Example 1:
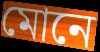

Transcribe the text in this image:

মোনে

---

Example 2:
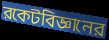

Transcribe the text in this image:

রকেটবিজ্ঞানের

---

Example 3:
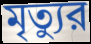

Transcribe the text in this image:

মৃত্যুর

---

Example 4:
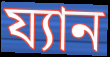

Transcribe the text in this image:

য্যান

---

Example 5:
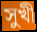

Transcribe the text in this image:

সুখী